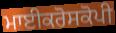
ਮਾਈਕਰੋਸਕੋਪੀ